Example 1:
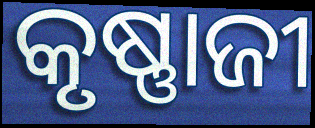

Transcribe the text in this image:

କୃଷ୍ଣାଜୀ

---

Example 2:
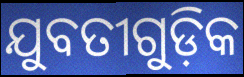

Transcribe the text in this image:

ଯୁବତୀଗୁଡ଼ିକ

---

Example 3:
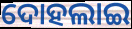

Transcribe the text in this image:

ଦୋହଲାଇ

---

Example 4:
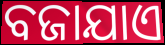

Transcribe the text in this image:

ବଜାଯାଏ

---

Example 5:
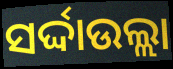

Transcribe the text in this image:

ସର୍ଦ୍ଦାଉଲ୍ଲା